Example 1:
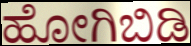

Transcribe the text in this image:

ಹೋಗಿಬಿಡಿ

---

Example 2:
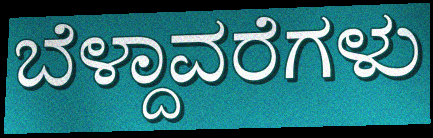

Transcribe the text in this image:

ಬೆಳ್ದಾವರೆಗಳು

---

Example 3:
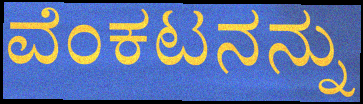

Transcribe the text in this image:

ವೆಂಕಟನನ್ನು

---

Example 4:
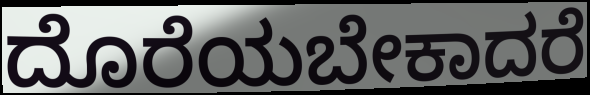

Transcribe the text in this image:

ದೊರೆಯಬೇಕಾದರೆ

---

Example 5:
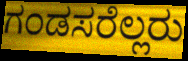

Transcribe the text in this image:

ಗಂಡಸರೆಲ್ಲರು